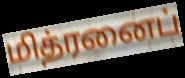
மித்ரனைப்